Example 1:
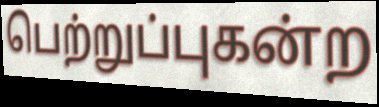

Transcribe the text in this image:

பெற்றுப்புகன்ற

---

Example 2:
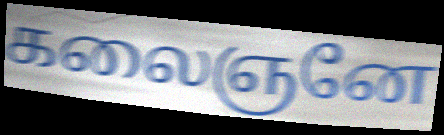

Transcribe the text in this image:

கலைஞனே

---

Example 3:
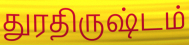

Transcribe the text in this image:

துரதிருஷ்டம்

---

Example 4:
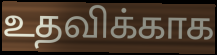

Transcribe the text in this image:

உதவிக்காக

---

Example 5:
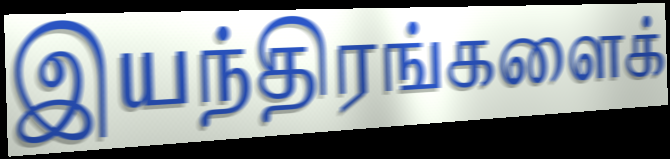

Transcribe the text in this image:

இயந்திரங்களைக்